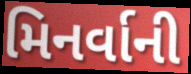
મિનર્વાની